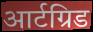
आर्टग्रिड